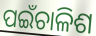
ପଇଁଚାଳିଶ